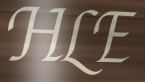
HLE